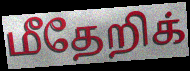
மீதேறிக்